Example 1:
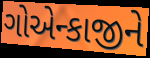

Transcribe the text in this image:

ગોએન્કાજીને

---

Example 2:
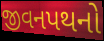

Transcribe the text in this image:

જીવનપથનો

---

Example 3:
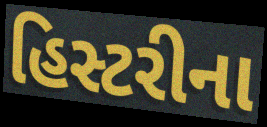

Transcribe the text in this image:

હિસ્ટરીના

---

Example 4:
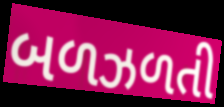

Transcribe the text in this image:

બળઝળતી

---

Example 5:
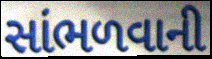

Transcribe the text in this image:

સાંભળવાની